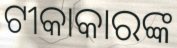
ଟୀକାକାରଙ୍କ